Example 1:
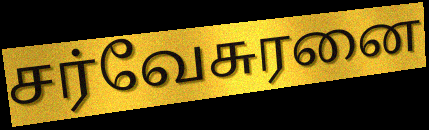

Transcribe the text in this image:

சர்வேசுரனை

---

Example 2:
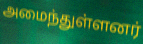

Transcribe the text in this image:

அமைந்துள்ளனர்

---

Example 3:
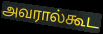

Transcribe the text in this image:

அவரால்கூட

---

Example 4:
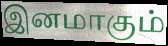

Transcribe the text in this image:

இனமாகும்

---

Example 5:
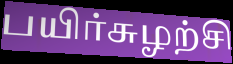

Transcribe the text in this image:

பயிர்சுழற்சி